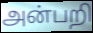
அன்பறி